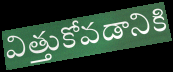
విత్తుకోవడానికి